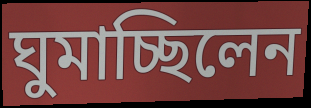
ঘুমাচ্ছিলেন